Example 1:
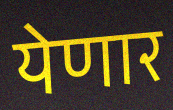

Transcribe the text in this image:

येणार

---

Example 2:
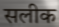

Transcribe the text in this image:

सलीक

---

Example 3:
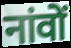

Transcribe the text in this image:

नांवों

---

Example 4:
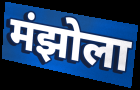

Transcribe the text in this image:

मंझोला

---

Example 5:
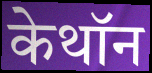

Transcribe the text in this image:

केथॉन